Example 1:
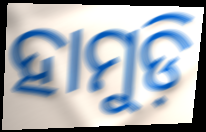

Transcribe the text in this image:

ହାମୁଡ଼ି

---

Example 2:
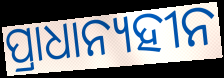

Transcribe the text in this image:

ପ୍ରାଧାନ୍ୟହୀନ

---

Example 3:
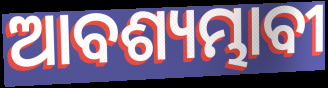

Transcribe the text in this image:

ଆବଶ୍ୟମ୍ଭାବୀ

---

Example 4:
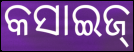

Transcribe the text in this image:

କସାଇଜ୍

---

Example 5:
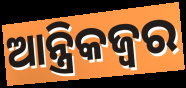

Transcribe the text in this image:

ଆନ୍ତ୍ରିକଜ୍ଵର